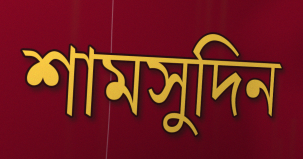
শামসুদিন